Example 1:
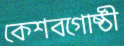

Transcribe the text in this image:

কেশবগোষ্ঠী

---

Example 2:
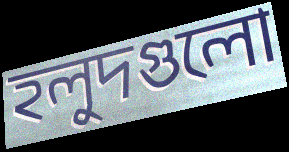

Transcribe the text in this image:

হলুদগুলো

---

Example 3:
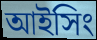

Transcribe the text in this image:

আইসিং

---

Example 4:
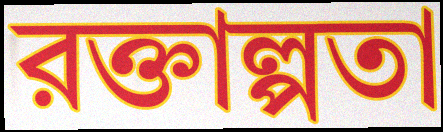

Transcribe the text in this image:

রক্তাল্পতা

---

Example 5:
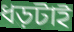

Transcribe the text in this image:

ধড়টাই